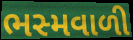
ભસ્મવાળી